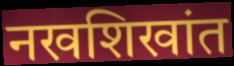
नखशिखांत